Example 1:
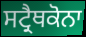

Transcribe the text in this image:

ਸਟ੍ਰੈਥਕੋਨਾ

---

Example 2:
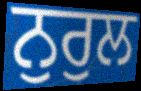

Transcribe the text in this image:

ਨੁਰੁਲ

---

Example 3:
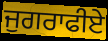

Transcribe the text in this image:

ਜੁਗਰਾਫੀਏ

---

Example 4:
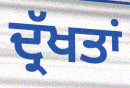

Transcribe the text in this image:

ਦ੍ਰੱਖਤਾਂ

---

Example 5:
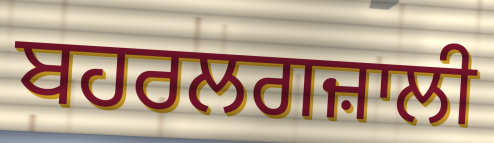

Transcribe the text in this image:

ਬਹਰਲਗਜ਼ਾਲੀ